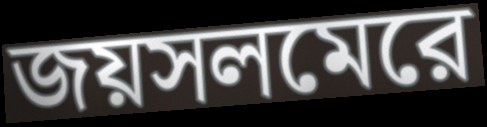
জয়সলমেরে